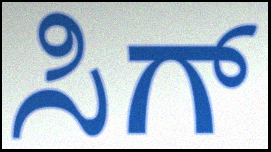
ಸಿಗ್